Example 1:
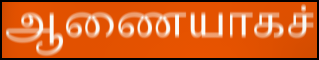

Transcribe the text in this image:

ஆணையாகச்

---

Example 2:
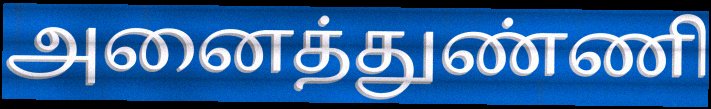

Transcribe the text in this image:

அனைத்துண்ணி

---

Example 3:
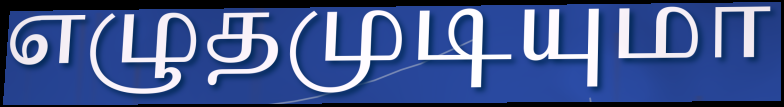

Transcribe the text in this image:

எழுதமுடியுமா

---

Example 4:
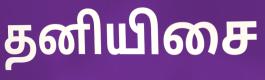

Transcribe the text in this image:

தனியிசை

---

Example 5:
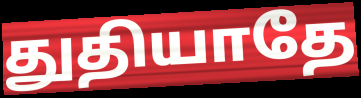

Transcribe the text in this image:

துதியாதே